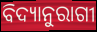
ବିଦ୍ୟାନୁରାଗୀ